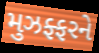
મુઝફ્ફરને